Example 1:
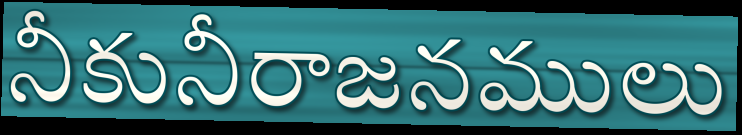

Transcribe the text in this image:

నీకునీరాజనములు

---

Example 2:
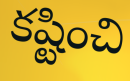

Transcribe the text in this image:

కష్టించి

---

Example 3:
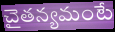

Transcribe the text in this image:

చైతన్యమంటే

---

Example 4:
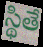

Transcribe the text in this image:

స్థితే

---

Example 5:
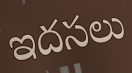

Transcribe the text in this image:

ఇదసలు